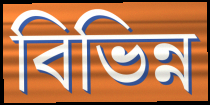
বিভিন্ন